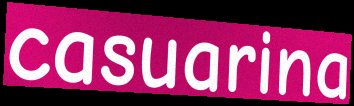
casuarina